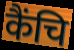
कैंचि